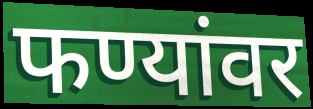
फण्यांवर